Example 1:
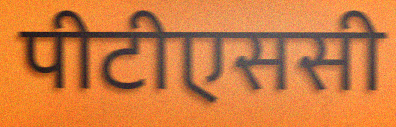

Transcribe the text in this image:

पीटीएससी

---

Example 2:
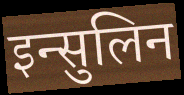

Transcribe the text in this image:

इन्सुलिन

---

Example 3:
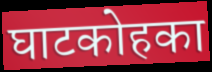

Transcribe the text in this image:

घाटकोहका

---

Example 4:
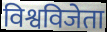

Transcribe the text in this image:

विश्वविजेता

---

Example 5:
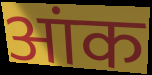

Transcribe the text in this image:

आंक